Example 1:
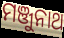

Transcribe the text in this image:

ମଞ୍ଜୁନାଥ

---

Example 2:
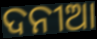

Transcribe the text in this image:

ଦନୀଆ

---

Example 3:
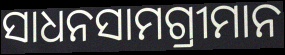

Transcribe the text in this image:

ସାଧନସାମଗ୍ରୀମାନ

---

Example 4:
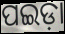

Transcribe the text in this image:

ପଇଡ଼ା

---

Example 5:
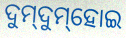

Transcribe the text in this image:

ଦୁମ୍‌ଦୁମ୍‌ହୋଇ